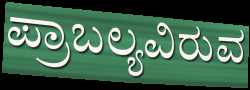
ಪ್ರಾಬಲ್ಯವಿರುವ